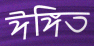
ঈঙ্গিত